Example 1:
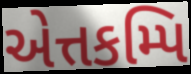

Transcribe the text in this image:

એત્તકમ્પિ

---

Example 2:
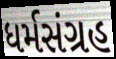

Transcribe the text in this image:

ધર્મસંગ્રહ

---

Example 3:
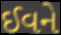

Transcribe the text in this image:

ઈવને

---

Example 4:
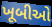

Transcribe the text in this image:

ખૂબીઓ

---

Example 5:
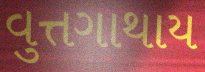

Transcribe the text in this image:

વુત્તગાથાય